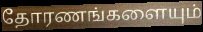
தோரணங்களையும்